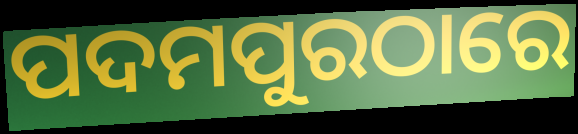
ପଦମପୁରଠାରେ